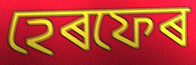
হেৰফেৰ